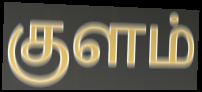
குளம்